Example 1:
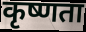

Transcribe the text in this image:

कृष्णता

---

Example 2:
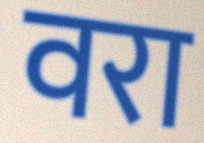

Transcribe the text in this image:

वरा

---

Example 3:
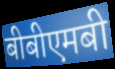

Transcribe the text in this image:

बीबीएमबी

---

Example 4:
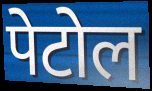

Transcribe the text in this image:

पेटोल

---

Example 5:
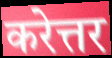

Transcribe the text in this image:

करेत्तर